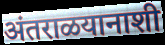
अंतराळयानाशी